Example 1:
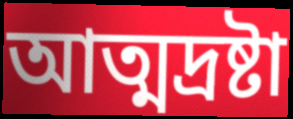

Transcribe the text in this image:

আত্মদ্রষ্টা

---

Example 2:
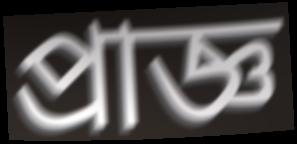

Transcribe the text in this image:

প্রাজ্ঞ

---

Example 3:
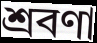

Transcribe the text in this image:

শ্রবণা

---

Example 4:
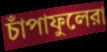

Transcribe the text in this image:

চাঁপাফুলেরা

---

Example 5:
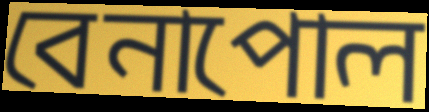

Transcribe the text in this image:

বেনাপোল